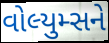
વોલ્યુમ્સને